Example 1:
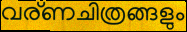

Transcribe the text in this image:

വര്ണചിത്രങ്ങളും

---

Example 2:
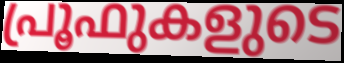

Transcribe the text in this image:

പ്രൂഫുകളുടെ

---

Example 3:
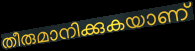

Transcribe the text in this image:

തീരുമാനിക്കുകയാണ്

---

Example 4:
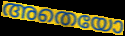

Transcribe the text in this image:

അതെയോ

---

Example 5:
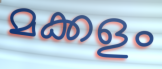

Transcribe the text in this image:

മക്കളം